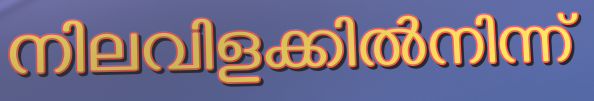
നിലവിളക്കിൽനിന്ന്